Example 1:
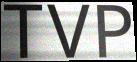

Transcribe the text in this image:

TVP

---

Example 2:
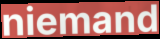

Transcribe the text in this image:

niemand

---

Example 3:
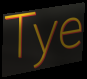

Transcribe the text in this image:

Tye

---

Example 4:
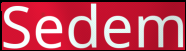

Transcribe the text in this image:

Sedem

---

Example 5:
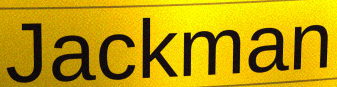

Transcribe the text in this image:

Jackman